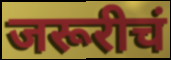
जरूरीचं